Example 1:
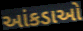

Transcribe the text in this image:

આંકડાઓ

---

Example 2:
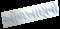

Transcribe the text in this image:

ઓળખાણનો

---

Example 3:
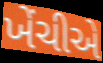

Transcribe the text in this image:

ખેંચીએ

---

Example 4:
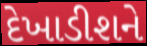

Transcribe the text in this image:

દેખાડીશને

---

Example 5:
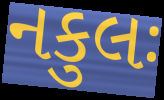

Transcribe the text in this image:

નકુલઃ